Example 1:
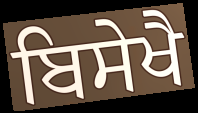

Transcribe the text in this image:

ਬਿਸੇਖੈ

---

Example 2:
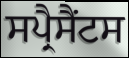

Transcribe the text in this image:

ਸਪ੍ਰੈਸੈਂਟਸ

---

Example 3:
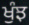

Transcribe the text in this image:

ਖੁੰਝ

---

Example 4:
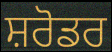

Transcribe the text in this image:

ਸ਼ਰੋਡਰ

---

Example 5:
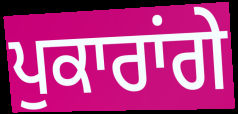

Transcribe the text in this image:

ਪੁਕਾਰਾਂਗੇ